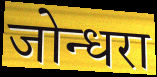
जोन्धरा